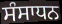
ਸੰਸਾਧਨ